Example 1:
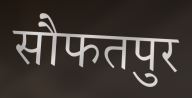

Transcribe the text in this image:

सौफतपुर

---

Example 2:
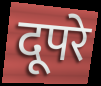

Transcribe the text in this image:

दूपरे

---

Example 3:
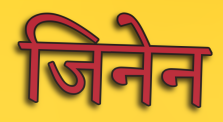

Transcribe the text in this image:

जिनेन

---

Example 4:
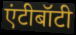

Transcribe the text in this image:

एंटीबॉटी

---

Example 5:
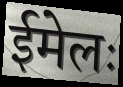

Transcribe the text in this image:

ईमेलः